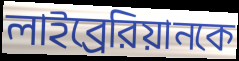
লাইব্রেরিয়ানকে